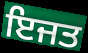
ਇਜਤ